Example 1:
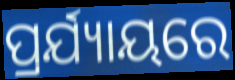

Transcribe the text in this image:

ପ୍ରର୍ଯ୍ୟାୟରେ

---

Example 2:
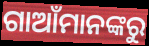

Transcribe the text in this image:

ଗାଆଁମାନଙ୍କରୁ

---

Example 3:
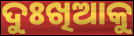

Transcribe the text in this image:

ଦୁଃଖିଆକୁ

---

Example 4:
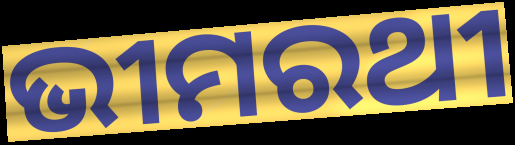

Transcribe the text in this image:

ଭୀମରଥୀ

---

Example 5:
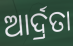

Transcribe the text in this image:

ଆର୍ଦ୍ରତା